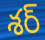
శర్